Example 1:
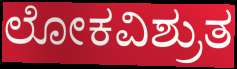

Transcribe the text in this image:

ಲೋಕವಿಶ್ರುತ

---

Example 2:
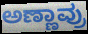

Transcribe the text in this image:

ಅಣ್ಣಾವ್ರು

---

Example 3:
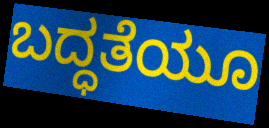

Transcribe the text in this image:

ಬದ್ಧತೆಯೂ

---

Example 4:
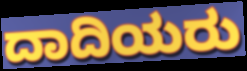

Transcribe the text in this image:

ದಾದಿಯರು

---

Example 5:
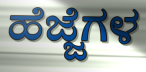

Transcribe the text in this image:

ಹೆಜ್ಜೆಗಳ